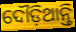
ଦୌଡ଼ିଥାନ୍ତି